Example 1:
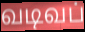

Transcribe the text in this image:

வடிவப்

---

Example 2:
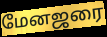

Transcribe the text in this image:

மேனஜரை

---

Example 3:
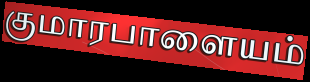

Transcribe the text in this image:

குமாரபாளையம்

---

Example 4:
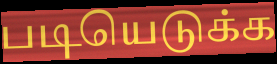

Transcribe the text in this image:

படியெடுக்க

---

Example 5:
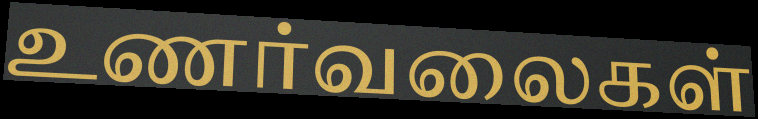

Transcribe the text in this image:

உணர்வலைகள்